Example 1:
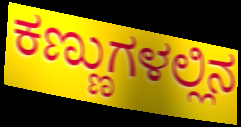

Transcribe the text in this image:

ಕಣ್ಣುಗಳಲ್ಲಿನ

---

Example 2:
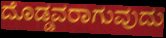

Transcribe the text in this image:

ದೊಡ್ಡವರಾಗುವುದು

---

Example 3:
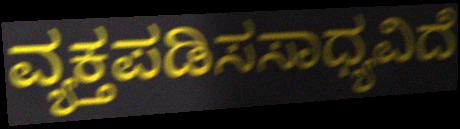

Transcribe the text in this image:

ವ್ಯಕ್ತಪಡಿಸಸಾಧ್ಯವಿದೆ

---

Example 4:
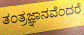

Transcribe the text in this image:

ತಂತ್ರಜ್ಞಾನವೆಂದರೆ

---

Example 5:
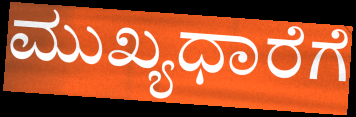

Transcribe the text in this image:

ಮುಖ್ಯಧಾರೆಗೆ